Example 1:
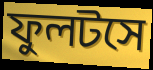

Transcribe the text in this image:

ফুলটসে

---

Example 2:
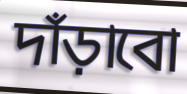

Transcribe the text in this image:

দাঁড়াবো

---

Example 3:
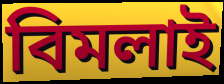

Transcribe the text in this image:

বিমলাই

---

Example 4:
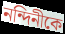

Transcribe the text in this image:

নন্দিনীকে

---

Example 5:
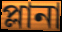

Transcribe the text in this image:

প্লানা